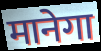
मानेगा